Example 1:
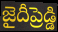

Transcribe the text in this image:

జైదీప్రెడ్డి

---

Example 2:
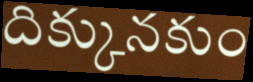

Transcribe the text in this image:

దిక్కునకుం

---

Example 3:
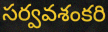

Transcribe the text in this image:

సర్వవశంకరి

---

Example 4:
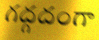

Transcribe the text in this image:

గద్గదంగా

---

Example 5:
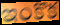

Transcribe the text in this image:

ఇంకొక